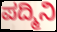
ಪದ್ಮಿನಿ